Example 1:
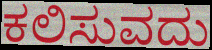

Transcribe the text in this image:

ಕಲಿಸುವದು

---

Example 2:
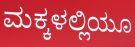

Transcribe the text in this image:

ಮಕ್ಕಳಲ್ಲಿಯೂ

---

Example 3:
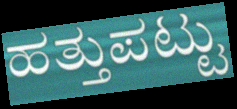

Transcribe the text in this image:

ಹತ್ತುಪಟ್ಟು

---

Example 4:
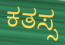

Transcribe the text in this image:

ಕತಸ್ಸ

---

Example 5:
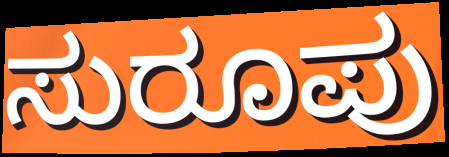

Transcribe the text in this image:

ಸುರೂಪು